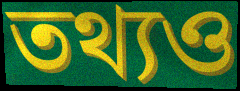
তথ্যও